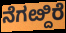
ನೆಗೞ್ದಿರೆ